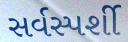
સર્વસ્પર્શી